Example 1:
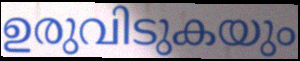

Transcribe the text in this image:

ഉരുവിടുകയും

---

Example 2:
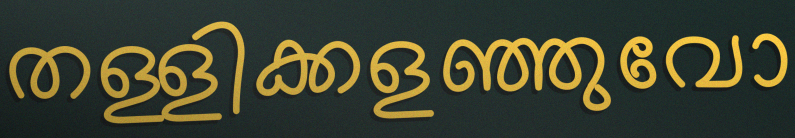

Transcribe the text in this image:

തള്ളിക്കളഞ്ഞുവോ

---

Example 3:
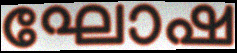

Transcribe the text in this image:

ഘോഷ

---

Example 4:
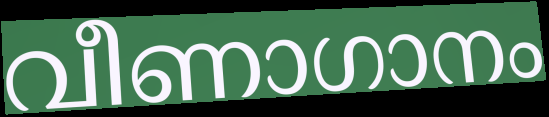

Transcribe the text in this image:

വീണാഗാനം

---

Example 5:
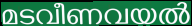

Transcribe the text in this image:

മടവീണവയൽ